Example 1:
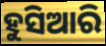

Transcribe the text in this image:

ହୁସିଆରି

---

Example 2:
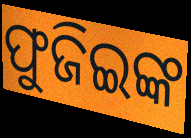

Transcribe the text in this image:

ଫୁଜିଇଙ୍କ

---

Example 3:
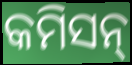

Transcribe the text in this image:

କମିସନ୍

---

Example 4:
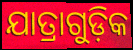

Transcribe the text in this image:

ଯାତ୍ରାଗୁଡ଼ିକ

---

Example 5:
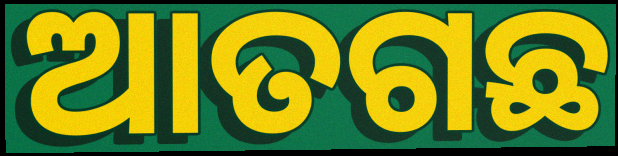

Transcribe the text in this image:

ଆତଗଛ